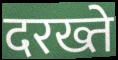
दरख्ते